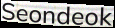
Seondeok